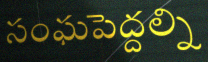
సంఘపెద్దల్ని